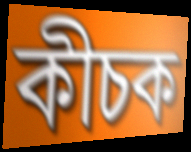
কীচক